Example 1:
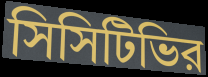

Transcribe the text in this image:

সিসিটিভির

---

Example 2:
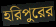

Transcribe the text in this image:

হরিপুরের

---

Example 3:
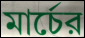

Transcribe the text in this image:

মার্চের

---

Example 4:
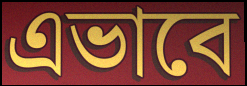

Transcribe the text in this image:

এভাবে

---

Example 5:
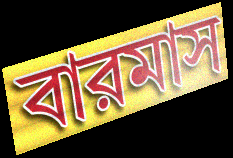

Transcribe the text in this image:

বারমাস